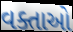
વક્તાઓ